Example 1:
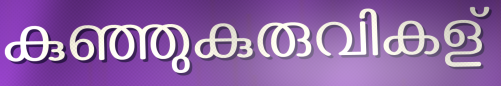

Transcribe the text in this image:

കുഞ്ഞുകുരുവികള്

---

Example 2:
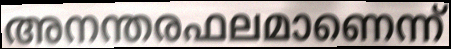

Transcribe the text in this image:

അനന്തരഫലമാണെന്ന്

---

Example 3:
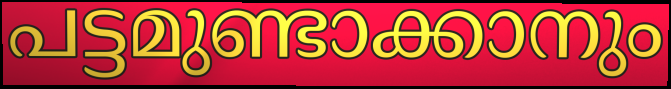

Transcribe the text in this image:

പട്ടമുണ്ടാക്കാനും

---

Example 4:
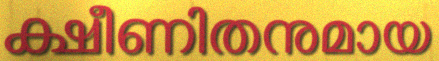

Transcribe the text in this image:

ക്ഷീണിതനുമായ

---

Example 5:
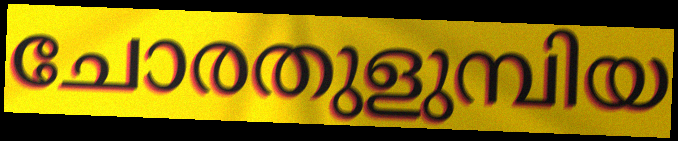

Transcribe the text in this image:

ചോരതുളുമ്പിയ